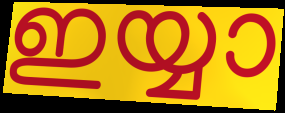
ഇയ്യാ